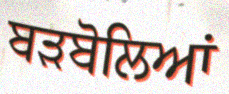
ਬੜਬੋਲਿਆਂ